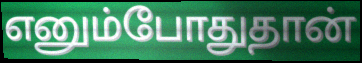
எனும்போதுதான்